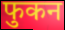
फुकन